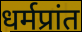
धर्मप्रांत